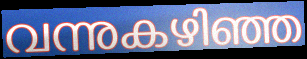
വന്നുകഴിഞ്ഞ